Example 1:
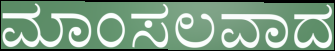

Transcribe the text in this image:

ಮಾಂಸಲವಾದ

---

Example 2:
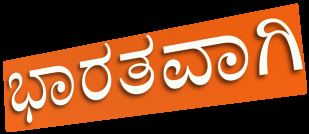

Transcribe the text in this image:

ಭಾರತವಾಗಿ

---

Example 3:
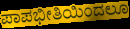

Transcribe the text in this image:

ಪಾಪಭೀತಿಯಿಂದಲೂ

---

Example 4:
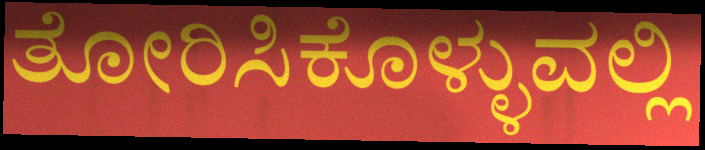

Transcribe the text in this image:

ತೋರಿಸಿಕೊಳ್ಳುವಲ್ಲಿ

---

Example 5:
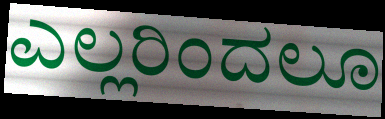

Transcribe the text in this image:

ಎಲ್ಲರಿಂದಲೂ